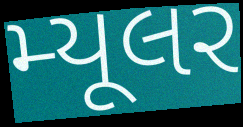
મ્યૂલર